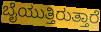
ಬೈಯುತ್ತಿರುತ್ತಾರೆ